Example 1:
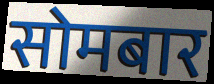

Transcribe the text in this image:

सोमबार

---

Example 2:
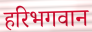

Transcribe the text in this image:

हरिभगवान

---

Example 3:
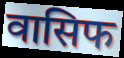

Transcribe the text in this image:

वासिफ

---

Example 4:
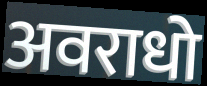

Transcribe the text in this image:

अवराधो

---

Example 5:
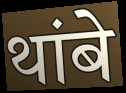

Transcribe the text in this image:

थांबे